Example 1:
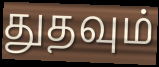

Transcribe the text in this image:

துதவும்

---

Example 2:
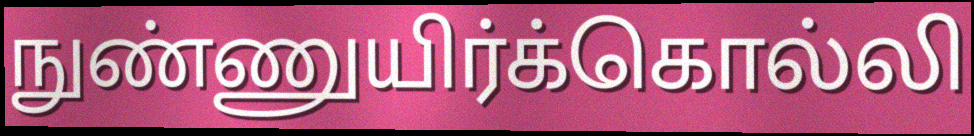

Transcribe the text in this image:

நுண்ணுயிர்க்கொல்லி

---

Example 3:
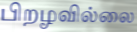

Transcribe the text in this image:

பிறழவில்லை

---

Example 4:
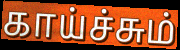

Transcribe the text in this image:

காய்ச்சும்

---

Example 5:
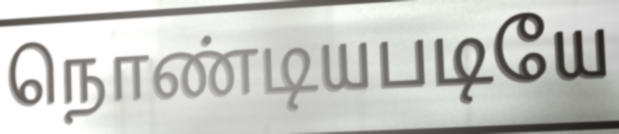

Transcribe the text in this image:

நொண்டியபடியே